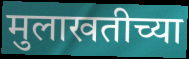
मुलाखतीच्या